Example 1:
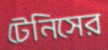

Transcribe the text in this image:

টেনিসের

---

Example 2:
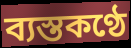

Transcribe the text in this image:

ব্যস্তকণ্ঠে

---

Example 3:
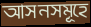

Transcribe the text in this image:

আসনসমূহে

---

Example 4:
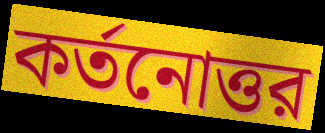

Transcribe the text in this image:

কর্তনোত্তর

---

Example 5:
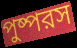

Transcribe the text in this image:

পুষ্পরস